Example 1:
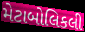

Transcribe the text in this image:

મેટાબોલિકલી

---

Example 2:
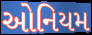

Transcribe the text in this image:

ઓનિયમ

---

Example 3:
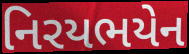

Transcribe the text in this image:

નિરયભયેન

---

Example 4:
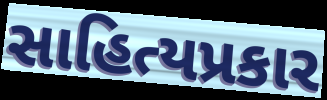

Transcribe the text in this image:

સાહિત્યપ્રકાર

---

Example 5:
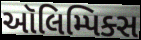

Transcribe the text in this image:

ઑલિમ્પિક્સ